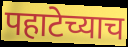
पहाटेच्याच